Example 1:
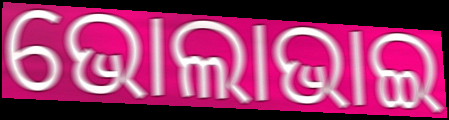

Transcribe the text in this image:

ଭୋଲାଭାଇ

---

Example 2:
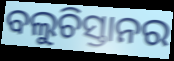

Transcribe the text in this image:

ବଲୁଚିସ୍ତାନର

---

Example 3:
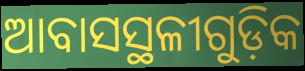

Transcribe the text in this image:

ଆବାସସ୍ଥଳୀଗୁଡ଼ିକ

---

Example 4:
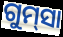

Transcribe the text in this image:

ଗୁମ୍‌ସା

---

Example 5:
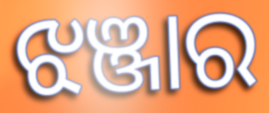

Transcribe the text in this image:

ଝଞ୍ଜାର